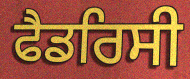
ਫੈਡਰਿਸੀ